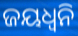
ଜୟଧ୍ଵନି